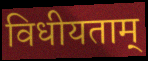
विधीयताम्